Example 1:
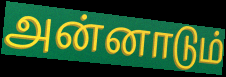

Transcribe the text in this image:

அன்னாடும்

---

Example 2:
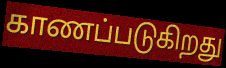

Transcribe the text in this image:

காணப்படுகிறது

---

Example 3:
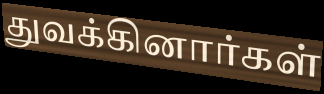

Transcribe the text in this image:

துவக்கினார்கள்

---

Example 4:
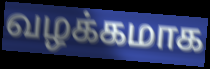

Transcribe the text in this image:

வழக்கமாக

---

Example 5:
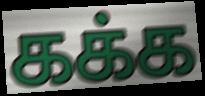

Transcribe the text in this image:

கக்க